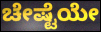
ಚೇಷ್ಟೆಯೇ